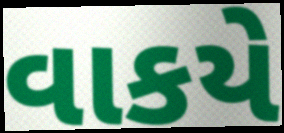
વાકયે